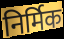
निर्मिक